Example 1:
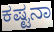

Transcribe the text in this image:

ಕಷ್ಟನಾ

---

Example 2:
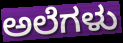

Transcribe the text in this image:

ಅಲೆಗಳು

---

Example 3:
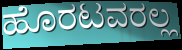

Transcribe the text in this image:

ಹೊರಟವರಲ್ಲ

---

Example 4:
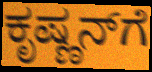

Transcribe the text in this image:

ಕೃಷ್ಣನ್‌ಗೆ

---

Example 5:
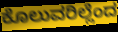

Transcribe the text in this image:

ಕೊಲುವರಿಲ್ಲೆಂದ